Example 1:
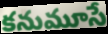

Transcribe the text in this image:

కనుమూసే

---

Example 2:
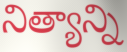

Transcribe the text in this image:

నిత్యాన్ని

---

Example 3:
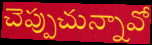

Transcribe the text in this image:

చెప్పుచున్నావో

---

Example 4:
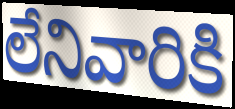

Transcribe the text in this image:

లేనివారికి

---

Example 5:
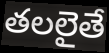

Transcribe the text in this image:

తలలైతే